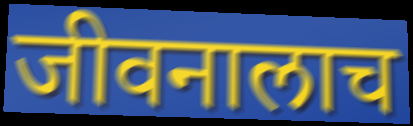
जीवनालाच